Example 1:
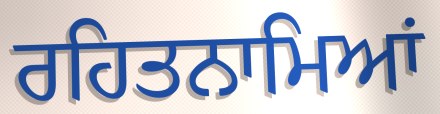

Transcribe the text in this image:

ਰਹਿਤਨਾਮਿਆਂ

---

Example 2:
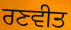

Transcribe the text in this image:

ਰਣਵੀਤ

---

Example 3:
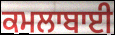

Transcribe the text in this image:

ਕਮਲਾਬਾਈ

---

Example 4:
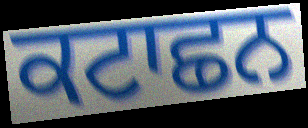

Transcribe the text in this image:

ਕਟਾਛਨ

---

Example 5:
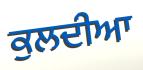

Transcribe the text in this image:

ਕੁਲਦੀਆ